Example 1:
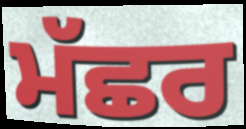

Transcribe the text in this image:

ਮੱਛਰ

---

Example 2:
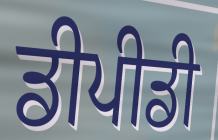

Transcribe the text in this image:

ਡੀਪੀਡੀ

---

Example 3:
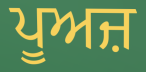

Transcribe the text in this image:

ਪੂਅਜ਼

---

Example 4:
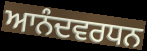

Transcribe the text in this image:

ਆਨੰਦਵਰਧਨ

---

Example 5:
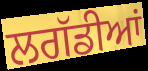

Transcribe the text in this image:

ਲਗੱਡੀਆਂ